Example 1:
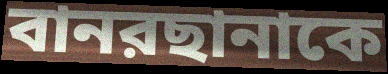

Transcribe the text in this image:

বানরছানাকে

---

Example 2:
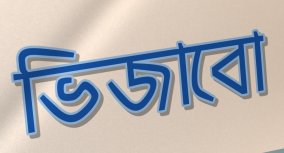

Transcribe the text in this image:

ভিজাবো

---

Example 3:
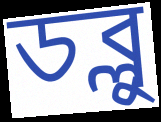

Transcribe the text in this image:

ডব্লু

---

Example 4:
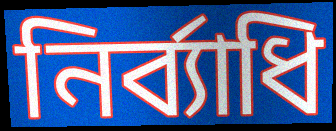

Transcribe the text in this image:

নির্ব্যাধি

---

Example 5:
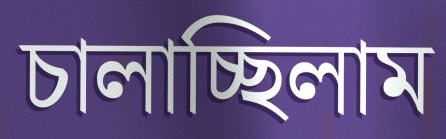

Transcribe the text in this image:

চালাচ্ছিলাম